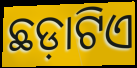
ଛଡ଼ାଟିଏ